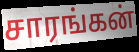
சாரங்கன்